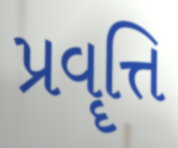
પ્રવૄત્તિ